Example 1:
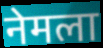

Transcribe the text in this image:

नेमला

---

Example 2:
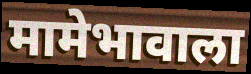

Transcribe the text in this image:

मामेभावाला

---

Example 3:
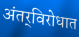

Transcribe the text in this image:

अंतर्विरोधात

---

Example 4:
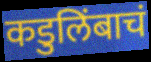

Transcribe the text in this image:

कडुलिंबाचं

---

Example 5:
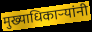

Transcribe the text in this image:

मुख्याधिकाऱ्यांनी